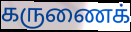
கருணைக்